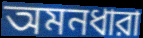
অমনধারা